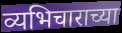
व्यभिचाराच्या